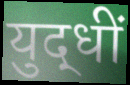
युद्धीं